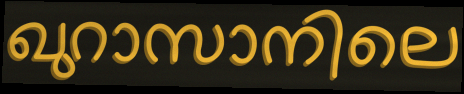
ഖുറാസാനിലെ